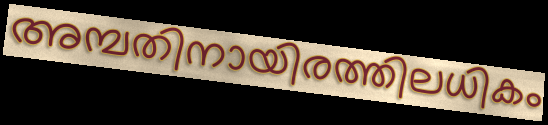
അമ്പതിനായിരത്തിലധികം